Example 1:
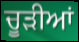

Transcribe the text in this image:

ਚੂੜੀਆਂ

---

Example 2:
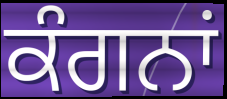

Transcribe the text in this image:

ਕੰਗਨਾਂ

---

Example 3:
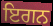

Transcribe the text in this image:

ਇਗਨ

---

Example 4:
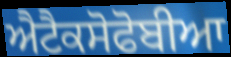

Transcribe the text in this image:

ਐਟੈਕਸੋਫੋਬੀਆ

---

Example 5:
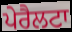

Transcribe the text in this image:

ਪੇਰੈਲਟਾ